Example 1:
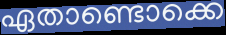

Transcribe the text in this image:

ഏതാണ്ടൊക്കെ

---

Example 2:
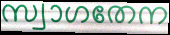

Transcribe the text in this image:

സ്വാഗതേന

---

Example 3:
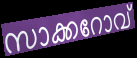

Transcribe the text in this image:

സാക്കറോവ്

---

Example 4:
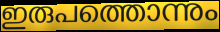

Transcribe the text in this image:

ഇരുപത്തൊന്നും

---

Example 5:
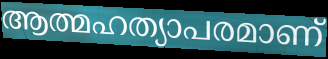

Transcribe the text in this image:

ആത്മഹത്യാപരമാണ്